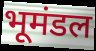
भूमंडल